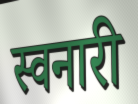
स्वनारी